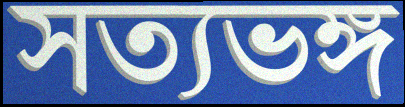
সত্যভঙ্গ